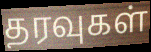
தரவுகள்